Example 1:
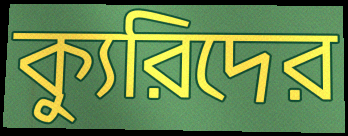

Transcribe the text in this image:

ক্যুরিদের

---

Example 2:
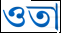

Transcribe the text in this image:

ওতা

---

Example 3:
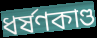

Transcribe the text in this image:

ধর্ষণকাণ্ড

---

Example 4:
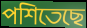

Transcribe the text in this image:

পশিতেছে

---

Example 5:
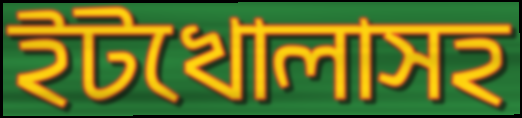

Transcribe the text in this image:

ইটখোলাসহ